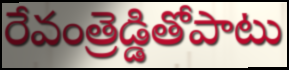
రేవంత్రెడ్డితోపాటు